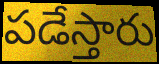
పడేస్తారు